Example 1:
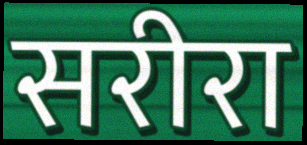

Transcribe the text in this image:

सरीरा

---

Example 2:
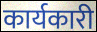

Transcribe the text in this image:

कार्यकारी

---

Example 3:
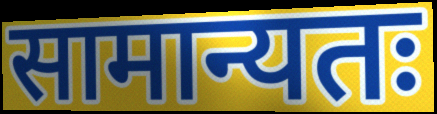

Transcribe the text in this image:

सामान्यतः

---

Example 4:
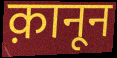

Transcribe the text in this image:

क़ानून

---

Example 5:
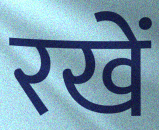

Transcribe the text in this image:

रखें